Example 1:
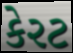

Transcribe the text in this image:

કેરટ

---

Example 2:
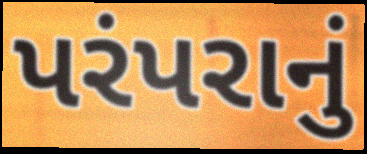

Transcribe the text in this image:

પરંપરાનું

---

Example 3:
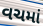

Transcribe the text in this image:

વચમાં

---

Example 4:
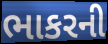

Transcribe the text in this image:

ભાકરની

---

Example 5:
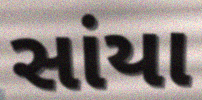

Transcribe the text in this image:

સાંયા